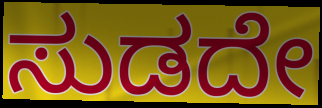
ಸುಡದೇ